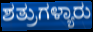
ಶತ್ರುಗಳ್ಯಾರು